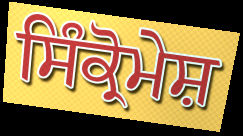
ਸਿੰਕ੍ਰੋਮੇਸ਼